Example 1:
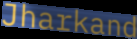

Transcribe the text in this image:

Jharkand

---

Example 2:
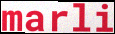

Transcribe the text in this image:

marli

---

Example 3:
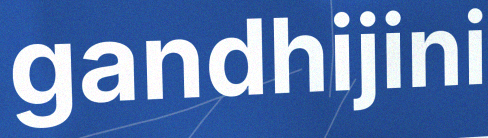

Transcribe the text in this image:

gandhijini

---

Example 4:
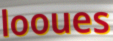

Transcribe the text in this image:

looues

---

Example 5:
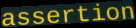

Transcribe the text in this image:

assertion